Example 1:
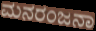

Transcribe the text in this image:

ಮನರಂಜನಾ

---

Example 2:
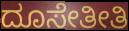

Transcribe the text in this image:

ದೂಸೇತೀತಿ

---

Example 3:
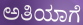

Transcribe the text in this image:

ಅತಿಯಾಗೆ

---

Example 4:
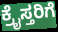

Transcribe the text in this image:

ಕ್ರೈಸ್ತರಿಗೆ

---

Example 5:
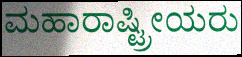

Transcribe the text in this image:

ಮಹಾರಾಷ್ಟ್ರೀಯರು